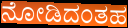
ನೋಡಿದಂತಹ